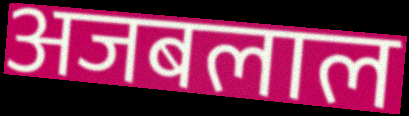
अजबलाल